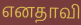
எனதாவி